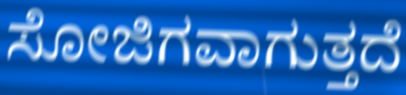
ಸೋಜಿಗವಾಗುತ್ತದೆ